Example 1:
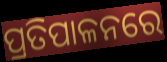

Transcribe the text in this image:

ପ୍ରତିପାଳନରେ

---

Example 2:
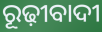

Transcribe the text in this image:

ରୂଢ଼ୀବାଦୀ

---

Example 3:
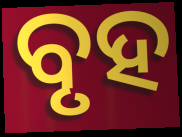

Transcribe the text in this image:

ବୃହ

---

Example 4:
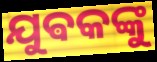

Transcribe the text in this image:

ଯୁଵକଙ୍କୁ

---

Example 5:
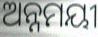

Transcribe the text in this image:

ଅନ୍ନମୟୀ